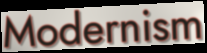
Modernism